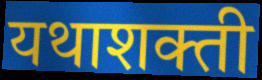
यथाशक्‍ती